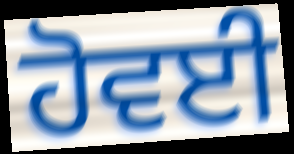
ਹੋਵਈ